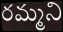
రమ్మని